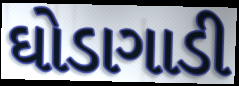
ઘોડાગાડી